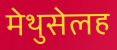
मेथुसेलह